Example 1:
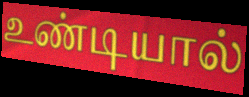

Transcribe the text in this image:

உண்டியால்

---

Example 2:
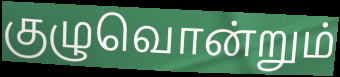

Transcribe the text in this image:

குழுவொன்றும்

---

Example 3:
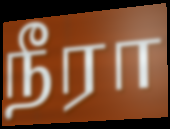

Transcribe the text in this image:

நீரா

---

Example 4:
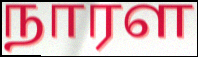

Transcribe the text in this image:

நாரள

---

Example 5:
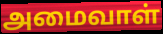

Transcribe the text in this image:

அமைவாள்